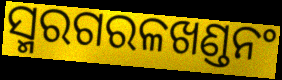
ସ୍ମରଗରଳଖଣ୍ଡନଂ